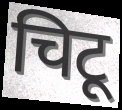
चिटू